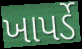
ખાપર્ડે